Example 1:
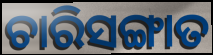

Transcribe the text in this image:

ଚାରିସଙ୍ଗାତ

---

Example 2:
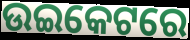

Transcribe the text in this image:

ଉଇକେଟରେ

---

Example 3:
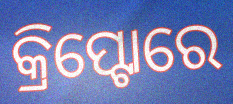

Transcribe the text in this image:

କ୍ରିପ୍ଟୋରେ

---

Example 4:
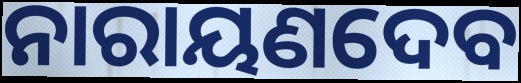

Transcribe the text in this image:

ନାରାୟଣଦେବ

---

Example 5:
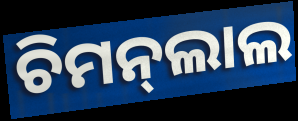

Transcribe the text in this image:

ଚିମନ୍‍ଲାଲ